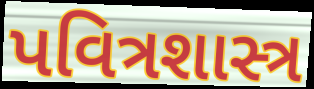
પવિત્રશાસ્ત્ર